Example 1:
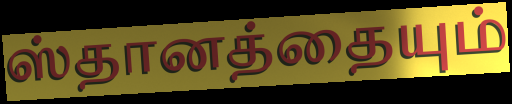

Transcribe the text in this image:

ஸ்தானத்தையும்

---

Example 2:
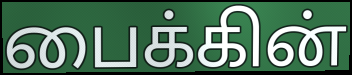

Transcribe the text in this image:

பைக்கின்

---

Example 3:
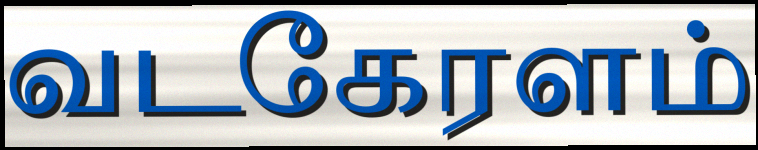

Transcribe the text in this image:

வடகேரளம்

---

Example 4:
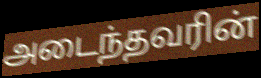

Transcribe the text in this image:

அடைந்தவரின்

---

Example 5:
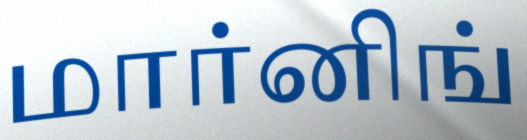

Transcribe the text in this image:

மார்னிங்